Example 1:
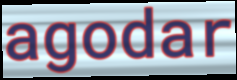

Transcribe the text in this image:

agodar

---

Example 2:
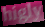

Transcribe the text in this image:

higly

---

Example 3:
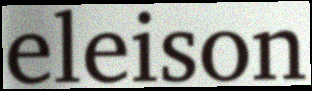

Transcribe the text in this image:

eleison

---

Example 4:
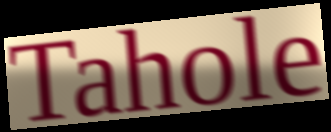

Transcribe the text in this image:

Tahole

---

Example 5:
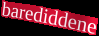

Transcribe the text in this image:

barediddene